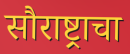
सौराष्ट्राचा